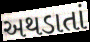
અથડાતાં